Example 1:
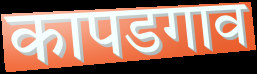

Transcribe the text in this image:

कापडगाव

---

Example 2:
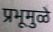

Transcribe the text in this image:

प्रभूमुळे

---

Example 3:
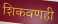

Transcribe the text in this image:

शिकवणही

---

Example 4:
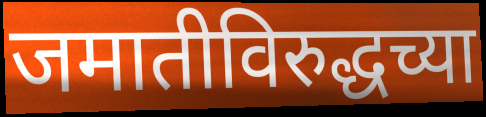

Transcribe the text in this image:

जमातीविरुद्धच्या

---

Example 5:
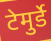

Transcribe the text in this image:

टेमुर्डे